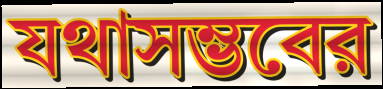
যথাসম্ভবের